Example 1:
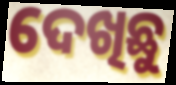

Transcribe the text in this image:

ଦେଖିଛୁ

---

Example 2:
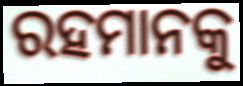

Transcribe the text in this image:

ରହମାନକୁ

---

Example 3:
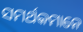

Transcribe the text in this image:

ସମର୍ଥକମାନେ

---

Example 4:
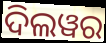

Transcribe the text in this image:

ଦିଲୱର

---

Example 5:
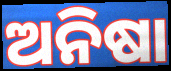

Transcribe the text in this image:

ଅନିଷା